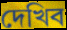
দেখিব